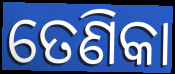
ତେଣିକା